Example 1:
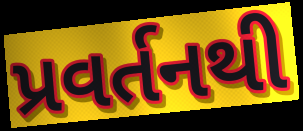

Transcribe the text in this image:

પ્રવર્તનથી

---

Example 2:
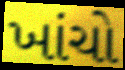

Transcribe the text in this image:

ખાંચો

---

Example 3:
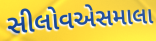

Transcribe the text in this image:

સીલોવએસમાલા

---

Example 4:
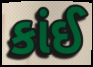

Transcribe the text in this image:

કાંઈ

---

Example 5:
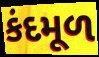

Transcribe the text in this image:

કંદમૂળ